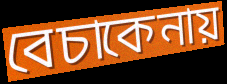
বেচাকেনায়